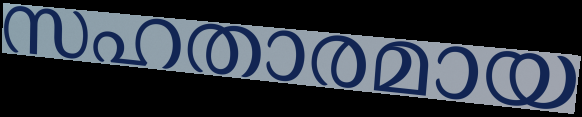
സഹതാരമായ